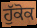
ਹੁੱਕੋਕ